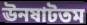
ঊনষাটতম